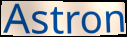
Astron